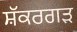
ਸ਼ੱਕਰਗੜ